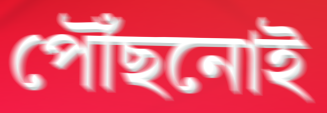
পৌঁছনোই